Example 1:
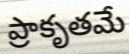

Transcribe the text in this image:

ప్రాకృతమే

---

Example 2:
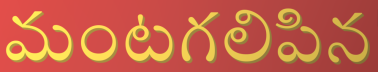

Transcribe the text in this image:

మంటగలిపిన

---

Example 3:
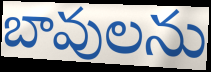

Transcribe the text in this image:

బావులను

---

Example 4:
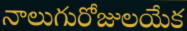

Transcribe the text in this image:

నాలుగురోజులయేక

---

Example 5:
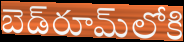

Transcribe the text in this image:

బెడ్‌రూమ్‌లోకి